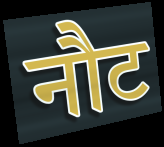
नौट